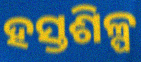
ହସ୍ତଶିଳ୍ପ